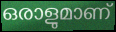
ഒരാളുമാണ്